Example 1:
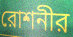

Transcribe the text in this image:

রোশনীর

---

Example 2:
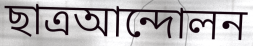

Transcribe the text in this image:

ছাত্রআন্দোলন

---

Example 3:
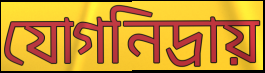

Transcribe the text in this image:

যোগনিদ্রায়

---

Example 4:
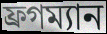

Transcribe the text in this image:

ফ্রগম্যান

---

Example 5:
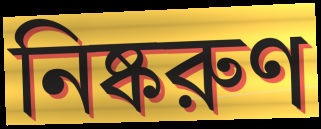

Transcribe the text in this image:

নিষ্করুণ